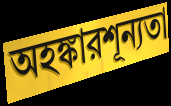
অহঙ্কারশূন্যতা